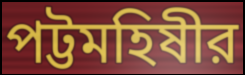
পট্টমহিষীর